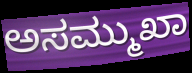
ಅಸಮ್ಮುಖಾ